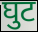
घुट